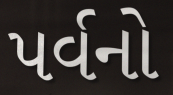
પર્વનો